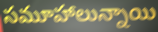
సమూహాలున్నాయి